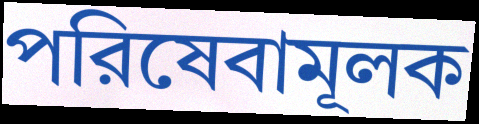
পরিষেবামূলক